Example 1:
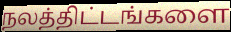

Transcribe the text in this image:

நலத்திட்டங்களை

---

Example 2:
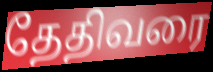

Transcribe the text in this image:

தேதிவரை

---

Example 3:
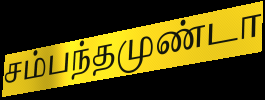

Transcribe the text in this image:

சம்பந்தமுண்டா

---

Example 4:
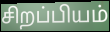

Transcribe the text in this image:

சிறப்பியம்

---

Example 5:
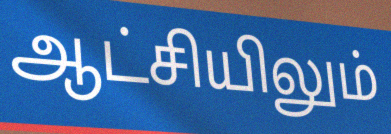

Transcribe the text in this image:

ஆட்சியிலும்